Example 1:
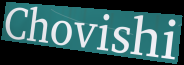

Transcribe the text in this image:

Chovishi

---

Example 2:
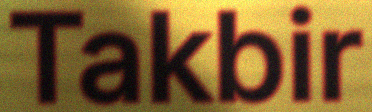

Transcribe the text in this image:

Takbir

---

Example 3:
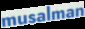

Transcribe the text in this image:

musalman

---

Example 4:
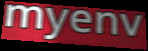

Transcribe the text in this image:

myenv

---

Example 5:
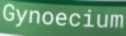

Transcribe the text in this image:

Gynoecium